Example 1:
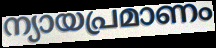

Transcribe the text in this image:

ന്യായപ്രമാണം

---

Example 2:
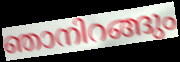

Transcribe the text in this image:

ഞാനിറങ്ങും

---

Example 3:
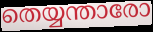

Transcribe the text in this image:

തെയ്യന്താരോ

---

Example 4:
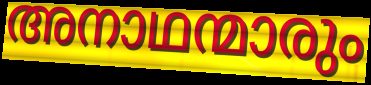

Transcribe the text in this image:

അനാഥന്മാരും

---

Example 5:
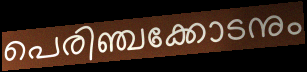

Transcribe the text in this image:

പെരിഞ്ചക്കോടനും